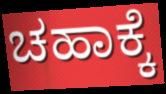
ಚಹಾಕ್ಕೆ